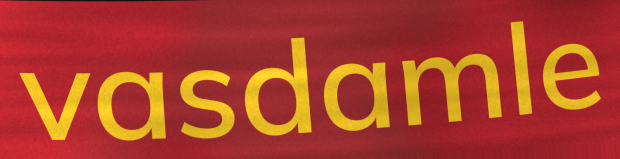
vasdamle